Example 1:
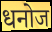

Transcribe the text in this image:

धनोज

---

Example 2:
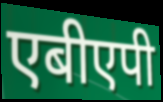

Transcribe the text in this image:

एबीएपी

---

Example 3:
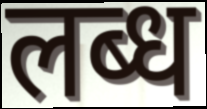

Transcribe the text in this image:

लब्ध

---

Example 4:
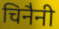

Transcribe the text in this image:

चिनैनी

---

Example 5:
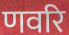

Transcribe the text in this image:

णवरि